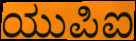
ಯುಪಿಐ